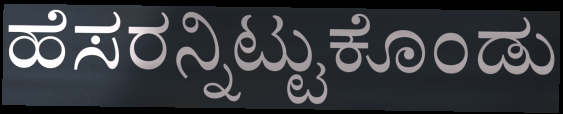
ಹೆಸರನ್ನಿಟ್ಟುಕೊಂಡು